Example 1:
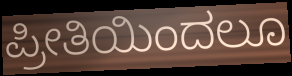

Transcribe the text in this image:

ಪ್ರೀತಿಯಿಂದಲೂ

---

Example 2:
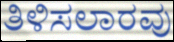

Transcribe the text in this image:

ತಿಳಿಸಲಾರವು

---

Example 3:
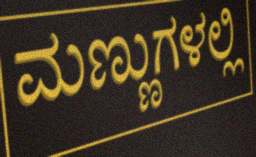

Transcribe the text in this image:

ಮಣ್ಣುಗಳಲ್ಲಿ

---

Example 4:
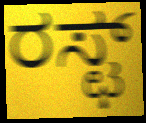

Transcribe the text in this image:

ರಸ್ಟ್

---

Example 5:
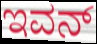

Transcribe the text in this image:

ಇವನ್